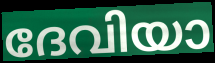
ദേവിയാ